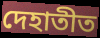
দেহাতীত